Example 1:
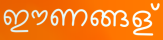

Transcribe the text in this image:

ഈണങ്ങള്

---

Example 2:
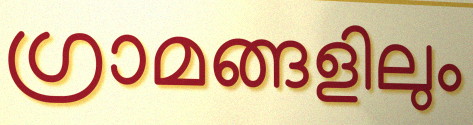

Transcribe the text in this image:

ഗ്രാമങ്ങളിലും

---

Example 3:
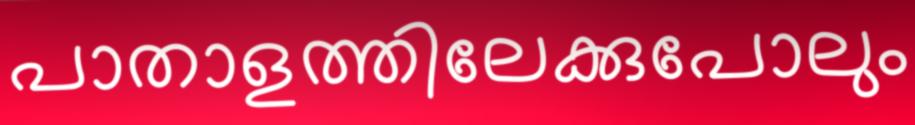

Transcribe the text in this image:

പാതാളത്തിലേക്കുപോലും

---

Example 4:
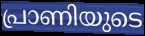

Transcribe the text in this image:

പ്രാണിയുടെ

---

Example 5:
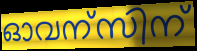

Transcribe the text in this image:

ഓവന്സിന്